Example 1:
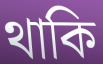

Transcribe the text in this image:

থাকি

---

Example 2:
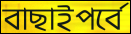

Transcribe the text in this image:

বাছাইপর্বে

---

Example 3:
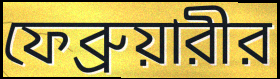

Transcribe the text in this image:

ফেব্রুয়ারীর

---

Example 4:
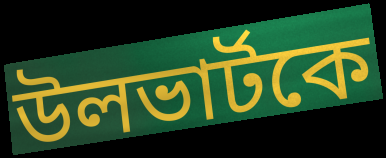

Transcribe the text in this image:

উলভার্টকে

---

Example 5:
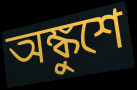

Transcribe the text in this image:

অঙ্কুশে